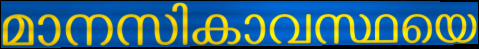
മാനസികാവസ്ഥയെ